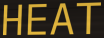
HEAT